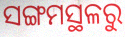
ସଙ୍ଗମସ୍ଥଳରୁ